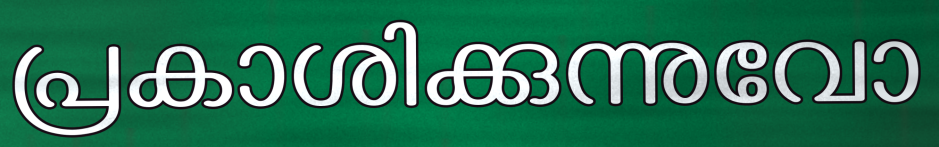
പ്രകാശിക്കുന്നുവോ